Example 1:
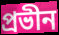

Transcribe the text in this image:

প্রভীন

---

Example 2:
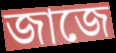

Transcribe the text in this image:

জাজে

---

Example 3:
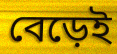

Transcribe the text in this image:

বেড়েই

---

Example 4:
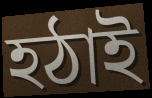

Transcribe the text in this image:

হঠাই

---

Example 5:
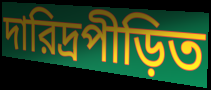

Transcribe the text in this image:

দারিদ্রপীড়িত